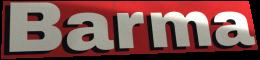
Barma